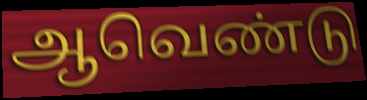
ஆவெண்டு